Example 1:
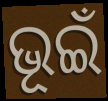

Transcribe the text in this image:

ଭୂଇଁ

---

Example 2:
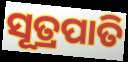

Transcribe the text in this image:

ସୂତ୍ରପାତି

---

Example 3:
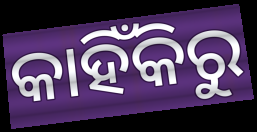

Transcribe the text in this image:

କାହିଁକିରୁ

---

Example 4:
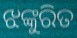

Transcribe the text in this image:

ଝଙ୍କୁରିତ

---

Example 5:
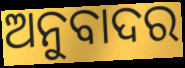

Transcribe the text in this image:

ଅନୁବାଦର